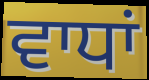
ਵਾਧਾਂ